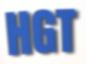
HGT